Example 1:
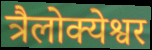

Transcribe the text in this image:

त्रैलोक्येश्वर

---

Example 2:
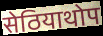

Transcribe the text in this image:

सेठियाथोप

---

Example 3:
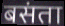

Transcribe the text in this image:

बसंता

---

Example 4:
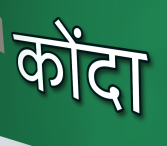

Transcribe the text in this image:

कोंदा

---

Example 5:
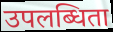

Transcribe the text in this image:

उपलब्धिता